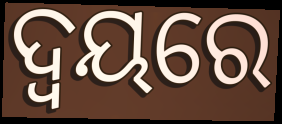
ଦ୍ୱୟରେ